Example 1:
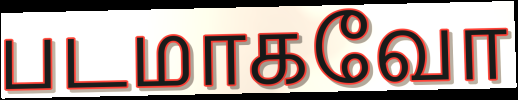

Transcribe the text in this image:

படமாகவோ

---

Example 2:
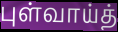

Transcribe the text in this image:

புள்வாய்த்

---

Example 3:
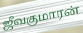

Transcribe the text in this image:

ஜீவகுமாரன்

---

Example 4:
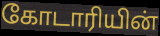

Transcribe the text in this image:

கோடாரியின்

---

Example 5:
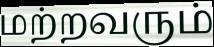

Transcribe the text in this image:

மற்றவரும்